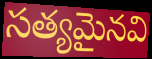
సత్యమైనవి